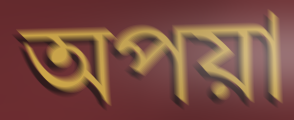
অপয়া